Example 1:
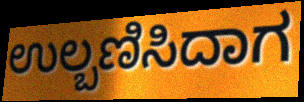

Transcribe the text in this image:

ಉಲ್ಬಣಿಸಿದಾಗ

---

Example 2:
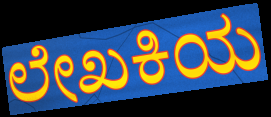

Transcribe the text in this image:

ಲೇಖಕಿಯ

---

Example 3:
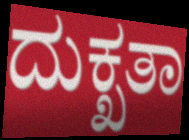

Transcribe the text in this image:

ದುಕ್ಖತಾ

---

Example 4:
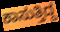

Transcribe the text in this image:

ಕಾಸುತ್ತಿದ್ದ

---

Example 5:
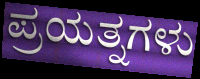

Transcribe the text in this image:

ಪ್ರಯತ್ನಗಳು